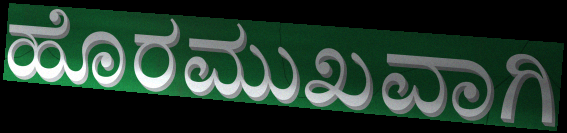
ಹೊರಮುಖವಾಗಿ